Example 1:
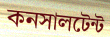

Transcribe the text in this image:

কনসালটেন্ট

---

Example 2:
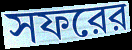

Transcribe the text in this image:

সফরের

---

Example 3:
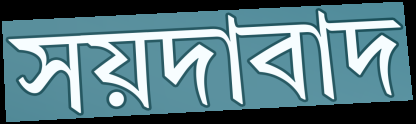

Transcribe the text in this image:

সয়দাবাদ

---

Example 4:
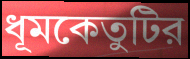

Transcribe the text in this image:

ধূমকেতুটির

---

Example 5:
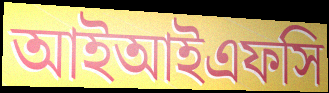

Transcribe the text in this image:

আইআইএফসি